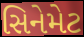
સિનેમેટ